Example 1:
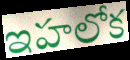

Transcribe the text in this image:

ఇహలోక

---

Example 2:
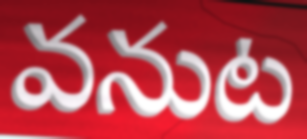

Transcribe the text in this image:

వనుట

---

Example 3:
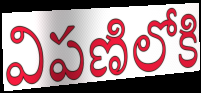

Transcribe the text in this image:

విపణిలోకి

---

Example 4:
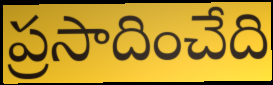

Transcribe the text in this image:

ప్రసాదించేది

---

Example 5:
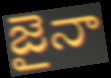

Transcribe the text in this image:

జైనా